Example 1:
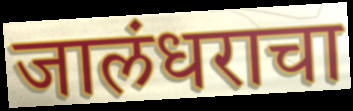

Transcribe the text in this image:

जालंधराचा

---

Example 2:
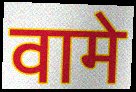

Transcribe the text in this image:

वामे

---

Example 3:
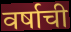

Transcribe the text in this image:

वर्षाची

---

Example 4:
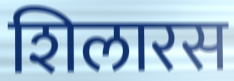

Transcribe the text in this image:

शिलारस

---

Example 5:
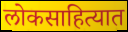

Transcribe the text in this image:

लोकसाहित्यात